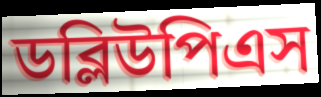
ডব্লিউপিএস